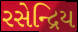
રસેન્દ્રિય